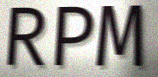
RPM